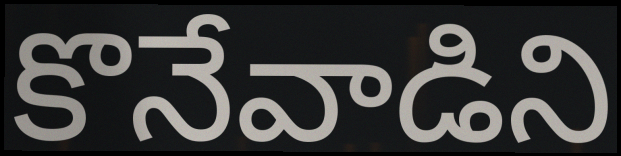
కొనేవాడిని